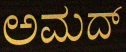
ಅಮದ್